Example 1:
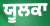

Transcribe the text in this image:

ਯੂਲਕਾ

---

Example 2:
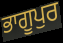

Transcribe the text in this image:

ਭਾਗੂਪੁਰ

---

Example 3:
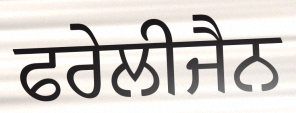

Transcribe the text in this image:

ਫਰੇਲੀਜੈਨ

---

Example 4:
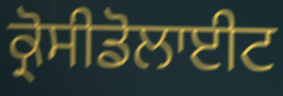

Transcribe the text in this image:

ਕ੍ਰੋਸੀਡੋਲਾਈਟ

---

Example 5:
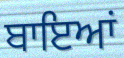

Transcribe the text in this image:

ਬਾਇਆਂ